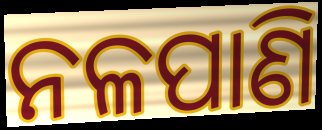
ନଳପାଣି